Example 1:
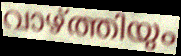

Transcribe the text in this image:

വാഴ്ത്തിയും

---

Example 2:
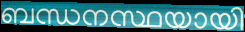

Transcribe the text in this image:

ബന്ധനസ്ഥയായി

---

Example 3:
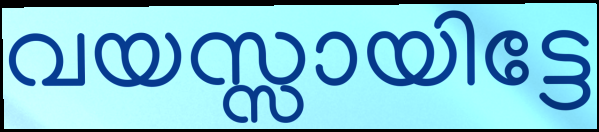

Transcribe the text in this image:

വയസ്സായിട്ടേ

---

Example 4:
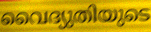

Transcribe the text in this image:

വൈദ്യുതിയുടെ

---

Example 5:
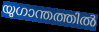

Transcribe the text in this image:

യുഗാന്തത്തിൽ